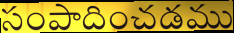
సంపాదించడము